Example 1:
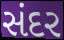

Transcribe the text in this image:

સંદર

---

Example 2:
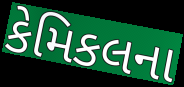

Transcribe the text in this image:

કેમિકલના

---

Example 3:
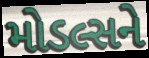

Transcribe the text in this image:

મોડલ્સને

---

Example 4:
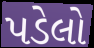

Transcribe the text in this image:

પડેલો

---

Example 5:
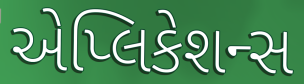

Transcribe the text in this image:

એપ્લિકેશન્સ